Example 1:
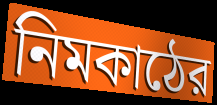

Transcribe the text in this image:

নিমকাঠের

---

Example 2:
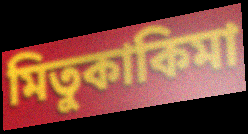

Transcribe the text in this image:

মিতুকাকিমা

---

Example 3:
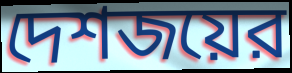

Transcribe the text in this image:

দেশজয়ের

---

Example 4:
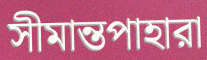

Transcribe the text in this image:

সীমান্তপাহারা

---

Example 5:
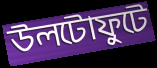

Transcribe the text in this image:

উলটোফুটে